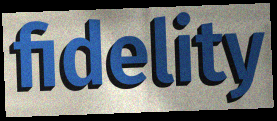
fidelity